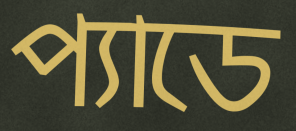
প্যাডে